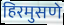
हिरमुसणे